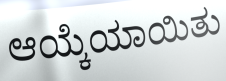
ಆಯ್ಕೆಯಾಯಿತು